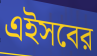
এইসবের